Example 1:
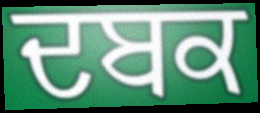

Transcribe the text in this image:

ਦਬਕ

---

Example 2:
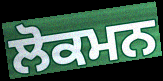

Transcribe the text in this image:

ਲੋਕਮਨ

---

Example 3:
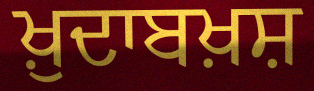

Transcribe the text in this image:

ਖ਼ੁਦਾਬਖ਼ਸ਼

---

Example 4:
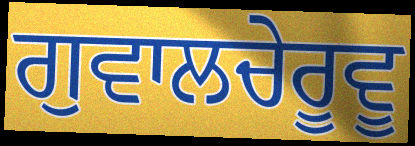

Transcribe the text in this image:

ਗੁਵਾਲਚੇਰੂਵੂ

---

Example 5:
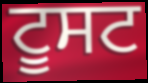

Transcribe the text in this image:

ਟੂਸਟ